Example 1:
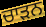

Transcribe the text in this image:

ਚਾੜਨ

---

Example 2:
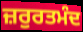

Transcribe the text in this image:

ਜ਼ਰੁਰਤਮੰਦ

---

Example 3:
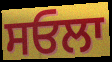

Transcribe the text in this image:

ਸਓਲਾ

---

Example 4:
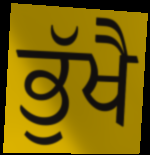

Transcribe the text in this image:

ਭੁੱਖੈ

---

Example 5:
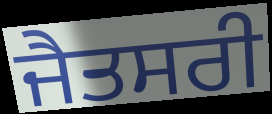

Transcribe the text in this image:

ਜੈਤਸਰੀ